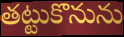
తట్టుకొనును